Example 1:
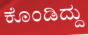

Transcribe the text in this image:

ಕೊಂಡಿದ್ದು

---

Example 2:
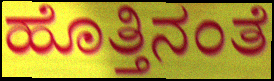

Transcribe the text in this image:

ಹೊತ್ತಿನಂತೆ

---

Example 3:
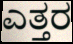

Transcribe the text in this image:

ಎತ್ತರ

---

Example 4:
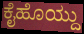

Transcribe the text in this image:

ಕೈಹೊಯ್ದು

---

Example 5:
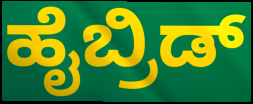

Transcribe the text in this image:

ಹೈಬ್ರಿಡ್